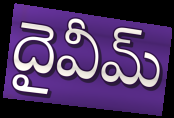
దైవీమ్